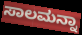
ಸಾಲಮನ್ನಾ